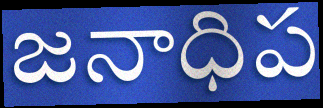
జనాధిప